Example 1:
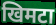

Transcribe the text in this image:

खिमटा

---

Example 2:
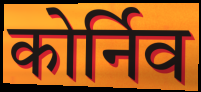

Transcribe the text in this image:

कोर्निव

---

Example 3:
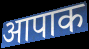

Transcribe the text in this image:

आपाक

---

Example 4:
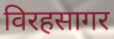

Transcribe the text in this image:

विरहसागर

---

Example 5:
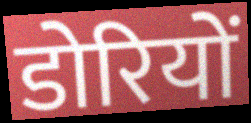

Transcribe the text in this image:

डोरियों